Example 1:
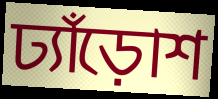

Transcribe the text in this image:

ঢ্যাঁড়োশ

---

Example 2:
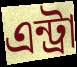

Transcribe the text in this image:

এন্ট্রা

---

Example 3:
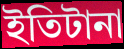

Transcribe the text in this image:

ইতিটানা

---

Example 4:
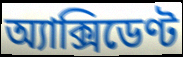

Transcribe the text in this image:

অ্যাক্সিডেণ্ট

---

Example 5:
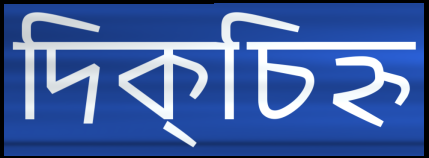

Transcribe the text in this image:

দিক্‌চিহ্ন